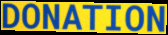
DONATION